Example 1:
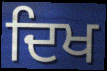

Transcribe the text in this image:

ਦਿਖ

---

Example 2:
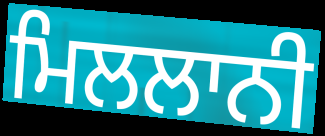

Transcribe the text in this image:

ਮਿਲਲਾਨੀ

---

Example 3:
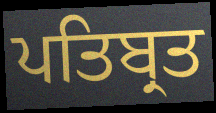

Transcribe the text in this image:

ਪਤਿਬ੍ਰਤ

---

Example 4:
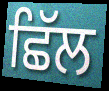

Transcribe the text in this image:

ਛਿੱਲ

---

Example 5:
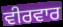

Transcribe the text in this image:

ਵੀਰਵਾਰ